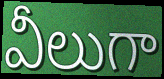
వీలుగా